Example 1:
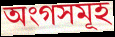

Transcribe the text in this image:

অংগসমূহ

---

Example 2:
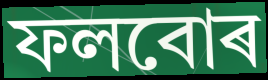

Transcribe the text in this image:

ফলবোৰ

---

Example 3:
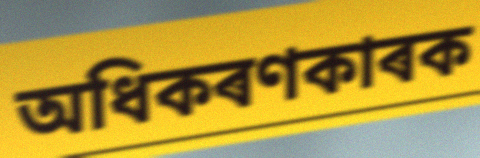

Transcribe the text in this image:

অধিকৰণকাৰক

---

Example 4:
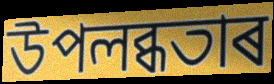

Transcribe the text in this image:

উপলব্ধতাৰ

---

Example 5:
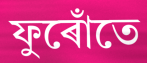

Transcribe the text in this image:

ফুৰোঁতে